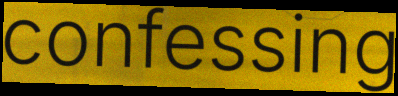
confessing